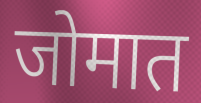
जोमात